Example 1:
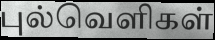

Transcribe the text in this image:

புல்வெளிகள்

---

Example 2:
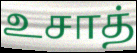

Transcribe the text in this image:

உசாத்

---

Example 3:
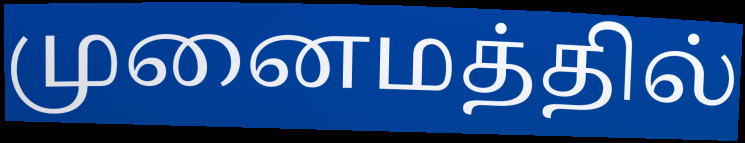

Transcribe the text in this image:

முனைமத்தில்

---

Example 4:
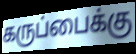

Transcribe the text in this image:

கருப்பைக்கு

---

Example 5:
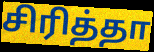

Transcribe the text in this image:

சிரித்தா